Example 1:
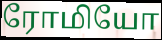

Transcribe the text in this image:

ரோமியோ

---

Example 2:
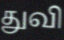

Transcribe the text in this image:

துவி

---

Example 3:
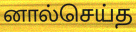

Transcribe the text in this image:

னால்செய்த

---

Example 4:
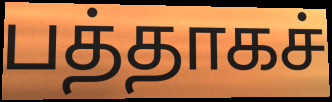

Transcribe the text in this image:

பத்தாகச்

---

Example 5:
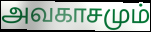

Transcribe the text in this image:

அவகாசமும்